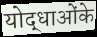
योद्धाओंके